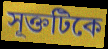
সূক্তটিকে